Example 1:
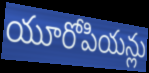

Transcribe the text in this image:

యూరోపియన్లు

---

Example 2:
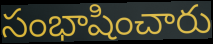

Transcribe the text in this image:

సంభాషించారు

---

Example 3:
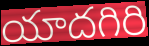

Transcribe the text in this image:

యాదగిరి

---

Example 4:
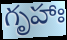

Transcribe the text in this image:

గృహాః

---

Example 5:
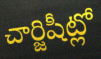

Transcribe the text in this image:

చార్జిషీట్లో